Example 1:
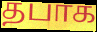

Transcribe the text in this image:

தபாக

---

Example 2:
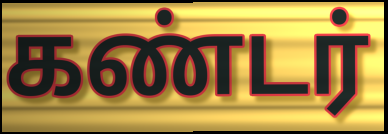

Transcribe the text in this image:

கண்டர்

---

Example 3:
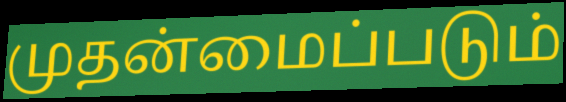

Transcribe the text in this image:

முதன்மைப்படும்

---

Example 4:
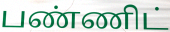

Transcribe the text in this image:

பண்ணிட்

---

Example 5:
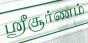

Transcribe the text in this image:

ஸ்ரீசூர்ணம்